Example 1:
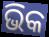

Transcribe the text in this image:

ଭିକ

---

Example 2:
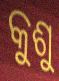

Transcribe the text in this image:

କୁଶୁ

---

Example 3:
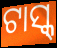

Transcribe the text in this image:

ଟାସ୍କ୍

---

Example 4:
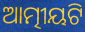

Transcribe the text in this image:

ଆତ୍ମୀୟଟି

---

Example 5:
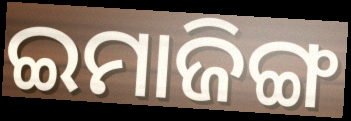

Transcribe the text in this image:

ଇମାଜିଙ୍ଗ